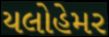
યલોહેમર